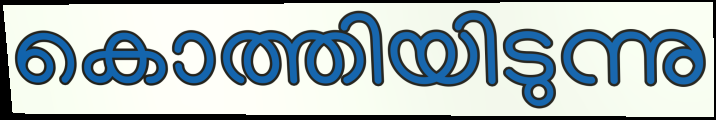
കൊത്തിയിടുന്നു